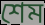
শেম